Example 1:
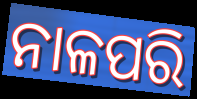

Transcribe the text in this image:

ନାଳପରି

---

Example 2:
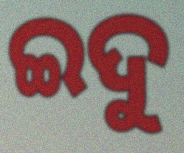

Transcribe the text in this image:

ଇଦୁ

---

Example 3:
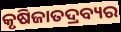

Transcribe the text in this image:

କୃଷିଜାତଦ୍ରବ୍ୟର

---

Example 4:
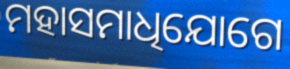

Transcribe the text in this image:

ମହାସମାଧିଯୋଗେ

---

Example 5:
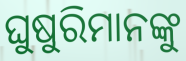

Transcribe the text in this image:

ଘୁଷୁରିମାନଙ୍କୁ